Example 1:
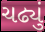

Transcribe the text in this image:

ચઢ્યું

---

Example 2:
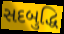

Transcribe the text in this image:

સદબુદ્ધિ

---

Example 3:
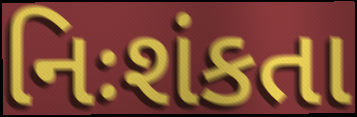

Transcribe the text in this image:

નિઃશંકતા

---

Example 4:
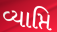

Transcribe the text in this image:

વ્યાપ્તિ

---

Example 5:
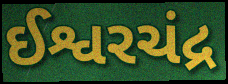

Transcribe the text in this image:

ઈશ્વરચંદ્ર